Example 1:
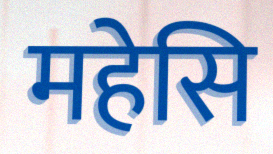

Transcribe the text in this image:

महेसि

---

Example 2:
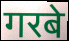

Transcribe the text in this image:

गरबे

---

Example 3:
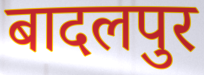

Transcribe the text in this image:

बादलपुर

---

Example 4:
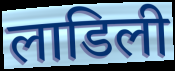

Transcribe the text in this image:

लाडिली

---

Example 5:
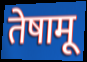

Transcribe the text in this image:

तेषामू